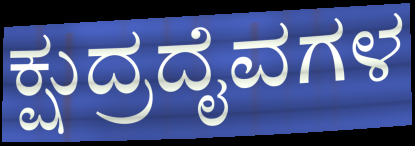
ಕ್ಷುದ್ರದೈವಗಳ